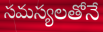
సమస్యలతోనే